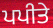
ਪਪੀਤੇ